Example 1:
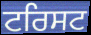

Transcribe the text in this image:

ਟਰਿਸਟ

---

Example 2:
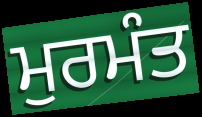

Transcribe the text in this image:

ਮੁਰਮੰਤ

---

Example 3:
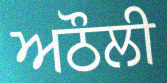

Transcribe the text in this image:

ਅਠੌਲੀ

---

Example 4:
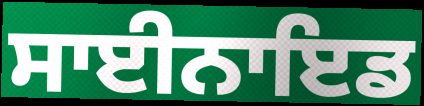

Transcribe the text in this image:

ਸਾਈਨਾਇਡ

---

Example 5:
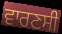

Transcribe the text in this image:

ਵਾਰਣਸੀ